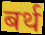
बर्थ